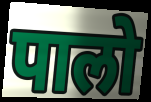
पालो